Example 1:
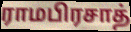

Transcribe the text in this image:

ராமபிரசாத்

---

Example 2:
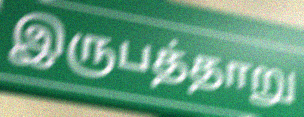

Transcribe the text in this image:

இருபத்தாறு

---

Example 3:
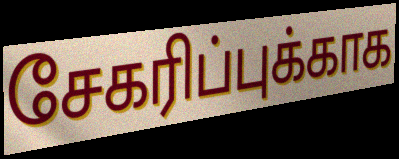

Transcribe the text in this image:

சேகரிப்புக்காக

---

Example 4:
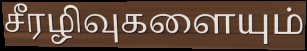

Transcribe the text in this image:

சீரழிவுகளையும்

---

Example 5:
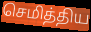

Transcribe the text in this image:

செமித்திய